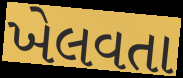
ખેલવતા